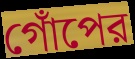
গোঁপের